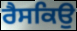
ਰੈਸਕਿਉ